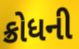
ક્રોધની